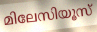
മിലേസിയൂസ്